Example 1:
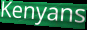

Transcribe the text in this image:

Kenyans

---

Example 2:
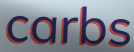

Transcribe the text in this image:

carbs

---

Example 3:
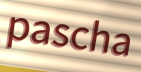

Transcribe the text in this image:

pascha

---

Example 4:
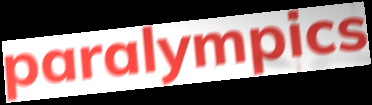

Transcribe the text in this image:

paralympics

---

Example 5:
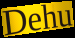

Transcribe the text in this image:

Dehu